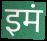
इमं